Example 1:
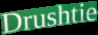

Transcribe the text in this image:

Drushtie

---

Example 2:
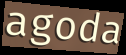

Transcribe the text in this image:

agoda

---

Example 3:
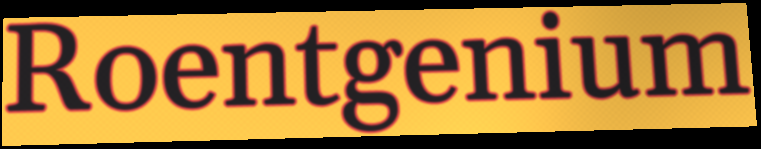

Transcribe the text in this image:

Roentgenium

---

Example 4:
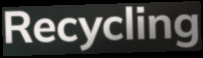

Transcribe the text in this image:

Recycling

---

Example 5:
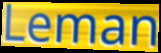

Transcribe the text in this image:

Leman